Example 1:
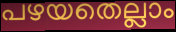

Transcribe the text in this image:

പഴയതെല്ലാം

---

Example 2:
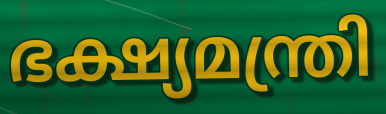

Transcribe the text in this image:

ഭക്ഷ്യമന്ത്രി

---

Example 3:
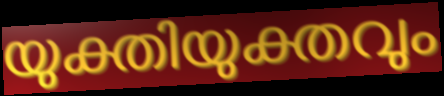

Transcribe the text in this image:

യുക്തിയുക്തവും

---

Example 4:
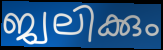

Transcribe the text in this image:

ജ്വലിക്കും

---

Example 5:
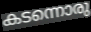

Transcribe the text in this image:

കടന്നൊരു